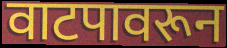
वाटपावरून